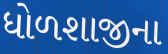
ધોળશાજીના